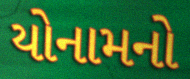
યોનામનો